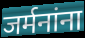
जर्मनांना